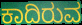
ಕಾದಿರುವ